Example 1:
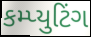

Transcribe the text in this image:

કમ્પ્યુટિંગ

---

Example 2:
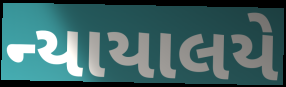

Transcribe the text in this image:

ન્યાયાલયે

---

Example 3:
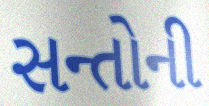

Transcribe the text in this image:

સન્તોની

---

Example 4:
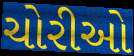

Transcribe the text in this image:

ચોરીઓ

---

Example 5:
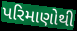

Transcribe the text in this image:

પરિમાણોથી